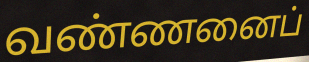
வண்ணனைப்